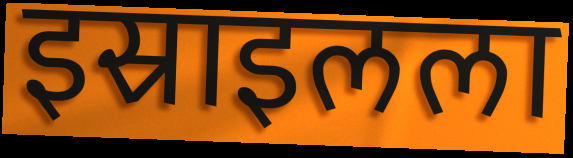
इस्राइलला